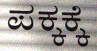
ಪಕ್ಕಕ್ಕೆ